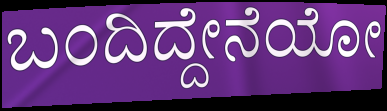
ಬಂದಿದ್ದೇನೆಯೋ